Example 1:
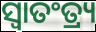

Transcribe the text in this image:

ସ୍ଵାତଂତ୍ର୍ୟ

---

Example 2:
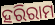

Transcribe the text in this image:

ହରିରାମ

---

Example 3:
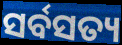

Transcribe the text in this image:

ସର୍ବସତ୍ୟ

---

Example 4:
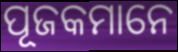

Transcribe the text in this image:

ପୂଜକମାନେ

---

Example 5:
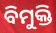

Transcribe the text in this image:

ବିମୁକ୍ତି